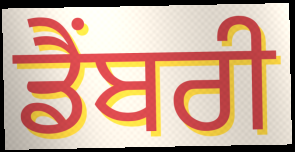
ਡੈਂਬਰੀ